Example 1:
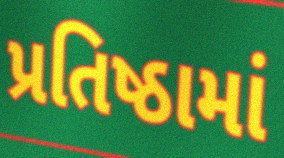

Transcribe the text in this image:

પ્રતિષ્ઠામાં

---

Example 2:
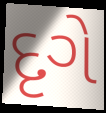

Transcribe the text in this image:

દૃગે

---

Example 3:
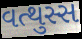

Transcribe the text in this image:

વત્થુસ્સ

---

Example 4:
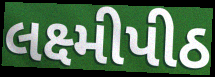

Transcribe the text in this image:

લક્ષ્મીપીઠ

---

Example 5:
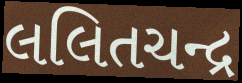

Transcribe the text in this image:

લલિતચન્દ્ર